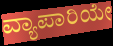
ವ್ಯಾಪಾರಿಯೇ